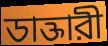
ডাক্তারী